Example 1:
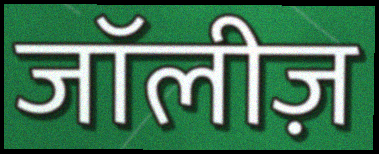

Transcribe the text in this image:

जॉलीज़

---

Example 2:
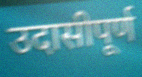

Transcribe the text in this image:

उदासीपूर्ण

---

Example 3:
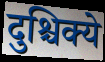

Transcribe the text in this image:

दुश्चिक्ये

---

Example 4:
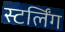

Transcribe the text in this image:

स्टर्लिंग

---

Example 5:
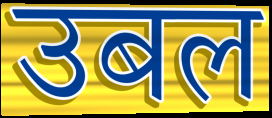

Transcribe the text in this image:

उबल